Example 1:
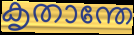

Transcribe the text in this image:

കൃതാന്തേ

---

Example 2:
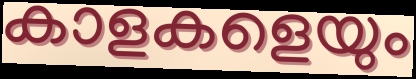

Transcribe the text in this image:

കാളകളെയും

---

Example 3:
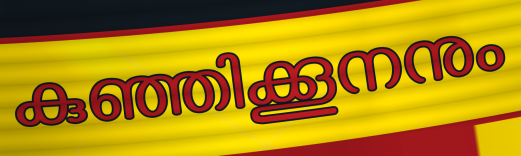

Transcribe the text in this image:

കുഞ്ഞിക്കൂനനും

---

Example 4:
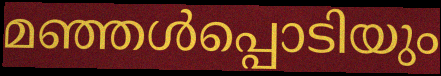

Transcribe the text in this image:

മഞ്ഞൾപ്പൊടിയും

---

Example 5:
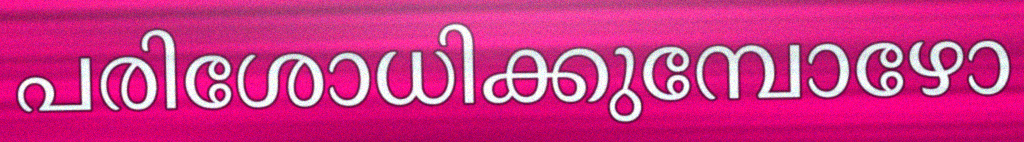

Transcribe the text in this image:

പരിശോധിക്കുമ്പോഴോ